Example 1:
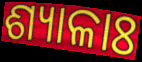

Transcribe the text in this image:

ଶ୍ୟାଳାଃ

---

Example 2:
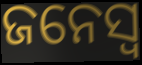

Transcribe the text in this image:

ଜନେସ୍ୱ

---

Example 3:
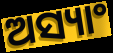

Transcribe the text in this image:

ଅସ୍ୟାଂ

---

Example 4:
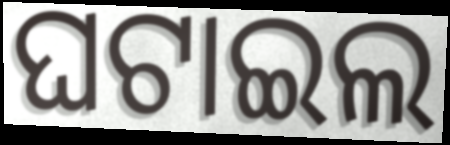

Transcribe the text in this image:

ଘଟାଇଲ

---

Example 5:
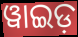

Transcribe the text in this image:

ୱାଇଡ଼